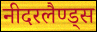
नीदरलैण्ड्स